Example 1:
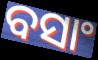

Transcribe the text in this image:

ବସାଂ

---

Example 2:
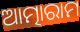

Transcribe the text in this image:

ଆତ୍ମାରାମ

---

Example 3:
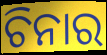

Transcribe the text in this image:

ଚିନାର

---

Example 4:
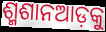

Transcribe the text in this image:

ଶ୍ମଶାନଆଡ଼କୁ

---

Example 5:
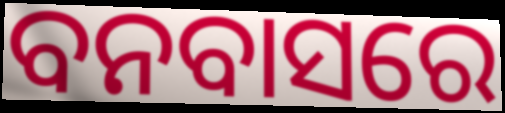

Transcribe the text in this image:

ବନବାସରେ